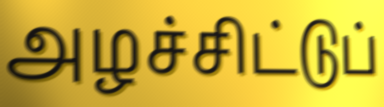
அழச்சிட்டுப்